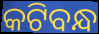
କଟିବନ୍ଧ